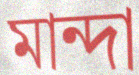
মান্দা